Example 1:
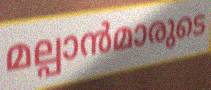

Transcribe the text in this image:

മല്പാൻമാരുടെ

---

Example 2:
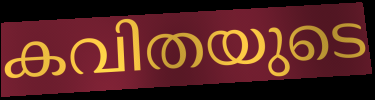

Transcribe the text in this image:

കവിതയുടെ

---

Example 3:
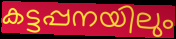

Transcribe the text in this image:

കട്ടപ്പനയിലും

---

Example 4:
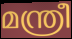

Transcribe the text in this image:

മന്ത്രീ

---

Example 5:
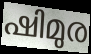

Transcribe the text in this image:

ഷിമുര